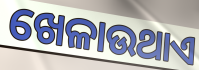
ଖେଳାଉଥାଏ